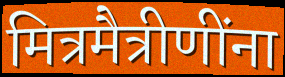
मित्रमैत्रीणींना